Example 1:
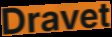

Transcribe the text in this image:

Dravet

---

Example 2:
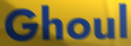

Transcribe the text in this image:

Ghoul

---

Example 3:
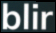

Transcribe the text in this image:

blir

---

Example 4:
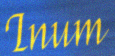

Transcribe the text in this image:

Inum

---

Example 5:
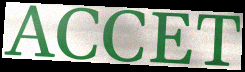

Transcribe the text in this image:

ACCET